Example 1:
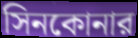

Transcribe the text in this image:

সিনকোনার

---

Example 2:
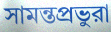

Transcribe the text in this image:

সামন্তপ্রভুরা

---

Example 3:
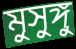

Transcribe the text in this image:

মুসুঙ্গু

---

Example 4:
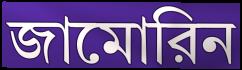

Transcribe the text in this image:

জামোরিন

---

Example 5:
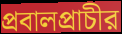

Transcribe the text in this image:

প্রবালপ্রাচীর